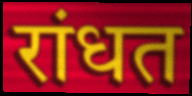
रांधत